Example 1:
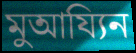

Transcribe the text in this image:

মুআয্যিন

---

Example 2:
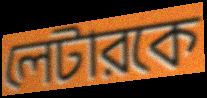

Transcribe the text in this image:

লেটারকে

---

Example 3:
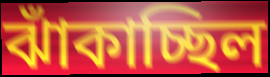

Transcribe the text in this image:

ঝাঁকাচ্ছিল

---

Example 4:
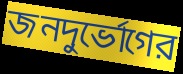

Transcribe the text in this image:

জনদুর্ভোগের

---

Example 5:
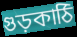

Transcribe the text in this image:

গুড়কাঠি